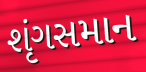
શૃંગસમાન